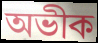
অভীক